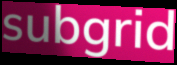
subgrid